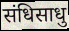
संधिसाधु